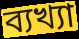
ব্যখ্যা